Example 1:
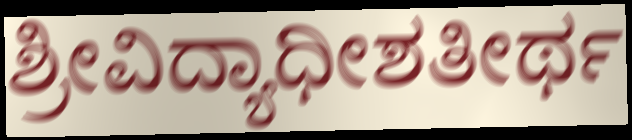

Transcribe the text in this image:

ಶ್ರೀವಿದ್ಯಾಧೀಶತೀರ್ಥ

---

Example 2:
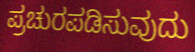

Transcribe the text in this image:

ಪ್ರಚುರಪಡಿಸುವುದು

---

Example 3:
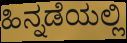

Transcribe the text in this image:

ಹಿನ್ನಡೆಯಲ್ಲಿ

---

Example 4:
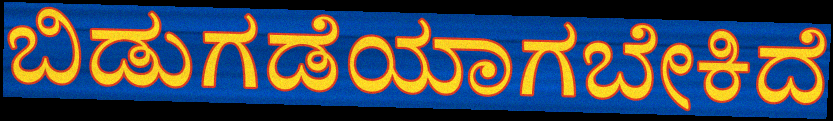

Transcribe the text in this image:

ಬಿಡುಗಡೆಯಾಗಬೇಕಿದೆ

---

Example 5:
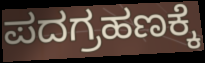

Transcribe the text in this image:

ಪದಗ್ರಹಣಕ್ಕೆ